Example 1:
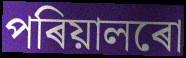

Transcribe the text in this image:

পৰিয়ালৰো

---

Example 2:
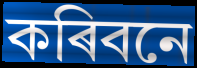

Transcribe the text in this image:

কৰিবনে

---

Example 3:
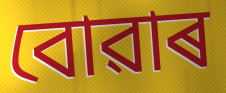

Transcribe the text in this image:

বোৱাৰ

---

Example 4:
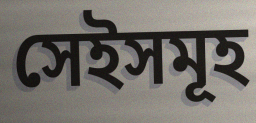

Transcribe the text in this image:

সেইসমূহ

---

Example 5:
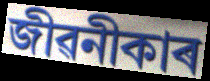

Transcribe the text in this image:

জীৱনীকাৰ